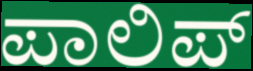
ಪಾಲಿಪ್